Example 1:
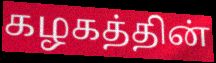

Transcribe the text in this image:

கழகத்தின்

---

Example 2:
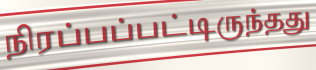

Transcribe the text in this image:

நிரப்பப்பட்டிருந்தது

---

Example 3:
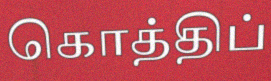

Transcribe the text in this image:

கொத்திப்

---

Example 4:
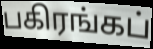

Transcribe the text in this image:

பகிரங்கப்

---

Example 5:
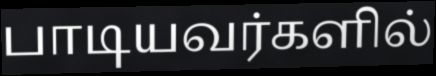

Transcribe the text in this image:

பாடியவர்களில்